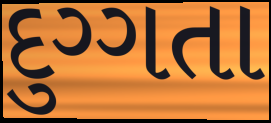
દુગ્ગતા